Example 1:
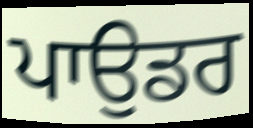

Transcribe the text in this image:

ਪਾਉਡਰ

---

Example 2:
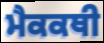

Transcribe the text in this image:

ਮੈਕਕਥੀ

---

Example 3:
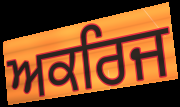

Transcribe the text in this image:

ਅਕਰਿਜ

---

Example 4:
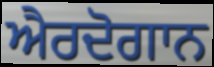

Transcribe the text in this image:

ਐਰਦੋਗਾਨ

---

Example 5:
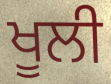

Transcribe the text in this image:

ਖੂਲੀ